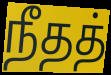
நீதத்